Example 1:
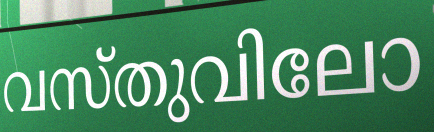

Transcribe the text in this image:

വസ്തുവിലോ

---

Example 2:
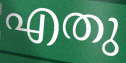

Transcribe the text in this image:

എതു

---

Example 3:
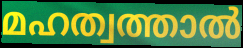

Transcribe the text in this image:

മഹത്വത്താൽ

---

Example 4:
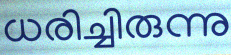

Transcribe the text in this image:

ധരിച്ചിരുന്നു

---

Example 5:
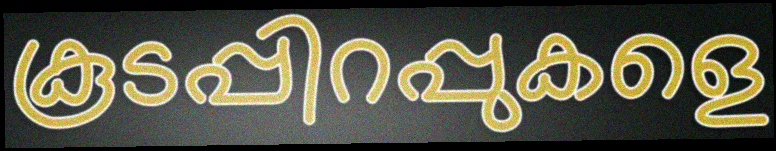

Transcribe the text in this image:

കൂടപ്പിറപ്പുകളെ